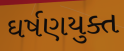
ઘર્ષણયુક્ત